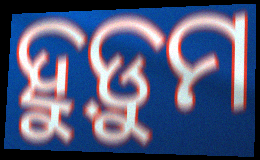
ହୁଡ଼ୁମ